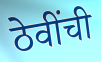
ठेवींची